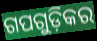
ଗପଗୁଡ଼ିକର